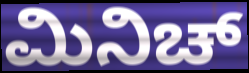
ಮಿನಿಚ್